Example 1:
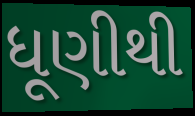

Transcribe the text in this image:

ધૂણીથી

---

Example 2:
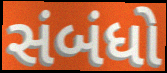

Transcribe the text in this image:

સંબંધો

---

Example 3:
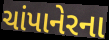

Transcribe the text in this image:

ચાંપાનેરના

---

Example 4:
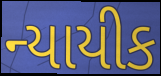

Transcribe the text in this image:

ન્યાયીક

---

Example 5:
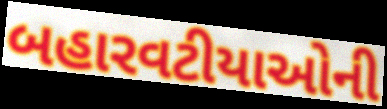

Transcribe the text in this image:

બહારવટીયાઓની